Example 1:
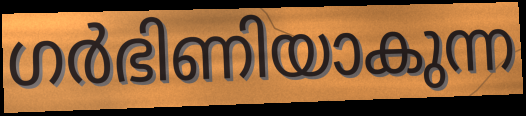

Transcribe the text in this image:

ഗർഭിണിയാകുന്ന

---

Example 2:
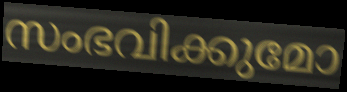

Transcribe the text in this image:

സംഭവിക്കുമോ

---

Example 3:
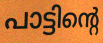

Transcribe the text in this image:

പാട്ടിന്റെ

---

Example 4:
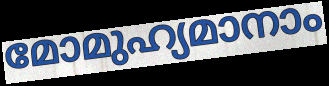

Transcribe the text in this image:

മോമുഹ്യമാനാം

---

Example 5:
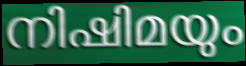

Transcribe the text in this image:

നിഷിമയും